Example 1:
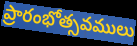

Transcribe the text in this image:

ప్రారంభోత్సవములు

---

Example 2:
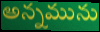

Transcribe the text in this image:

అన్నమును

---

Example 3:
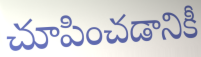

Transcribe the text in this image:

చూపించడానికీ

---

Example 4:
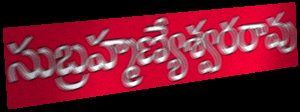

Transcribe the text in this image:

సుబ్రహ్మణ్యేశ్వరరావు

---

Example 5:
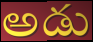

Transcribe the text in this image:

అడు